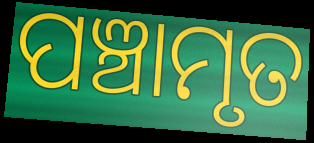
ପଞ୍ଚାମୃତ